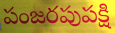
పంజరపుపక్షి